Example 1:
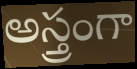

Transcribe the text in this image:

అస్త్రంగా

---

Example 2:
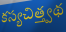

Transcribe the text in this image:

కస్యచిత్త్వథ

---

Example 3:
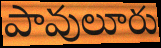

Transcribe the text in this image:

పావులూరు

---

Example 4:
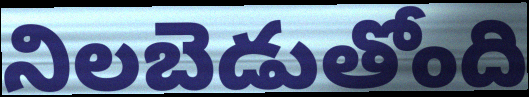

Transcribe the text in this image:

నిలబెడుతోంది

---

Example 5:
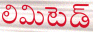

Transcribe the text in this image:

లిమిటెడ్